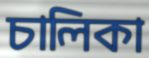
চালিকা